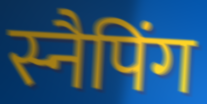
स्नैपिंग